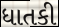
ધાતકી